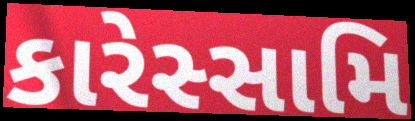
કારેસ્સામિ